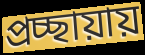
প্রচ্ছায়ায়